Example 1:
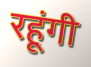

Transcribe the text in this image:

रहूंगी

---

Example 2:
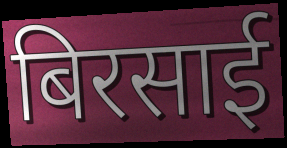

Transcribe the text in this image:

बिरसाई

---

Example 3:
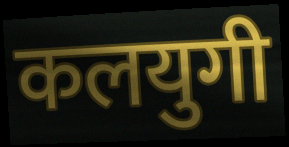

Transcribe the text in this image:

कलयुगी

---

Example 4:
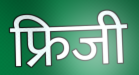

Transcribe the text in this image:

फ्रिजी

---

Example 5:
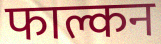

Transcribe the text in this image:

फाल्कन